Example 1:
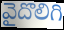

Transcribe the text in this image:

వైదొలిగి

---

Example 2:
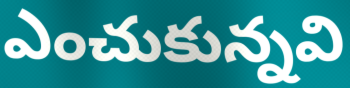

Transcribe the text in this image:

ఎంచుకున్నవి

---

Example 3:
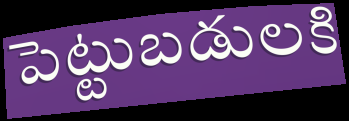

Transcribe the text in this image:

పెట్టుబడులకి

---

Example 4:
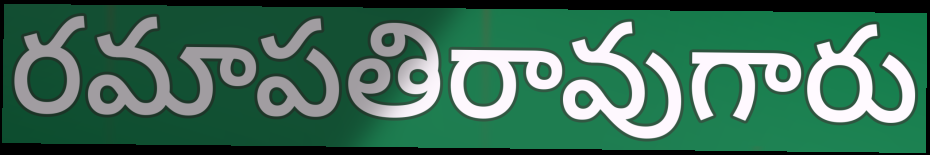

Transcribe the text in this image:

రమాపతిరావుగారు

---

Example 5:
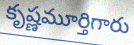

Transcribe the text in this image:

కృష్ణమూర్తిగారు